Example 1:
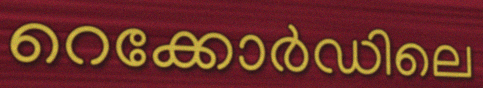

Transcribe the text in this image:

റെക്കോർഡിലെ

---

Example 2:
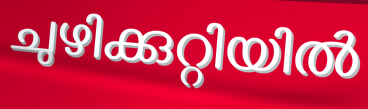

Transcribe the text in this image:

ചുഴിക്കുറ്റിയിൽ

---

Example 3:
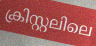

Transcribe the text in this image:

ക്രിസ്റ്റലിലെ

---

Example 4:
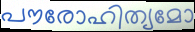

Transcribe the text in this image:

പൗരോഹിത്യമോ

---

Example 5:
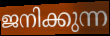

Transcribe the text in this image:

ജനിക്കുന്ന